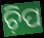
ଚ଼ିପ